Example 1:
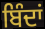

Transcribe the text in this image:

ਬਿੰਦਾਂ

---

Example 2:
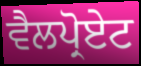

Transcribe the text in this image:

ਵੈਲਪ੍ਰੋਏਟ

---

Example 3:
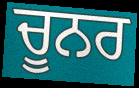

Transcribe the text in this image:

ਚੂਨਰ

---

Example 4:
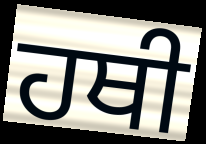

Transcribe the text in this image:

ਹਥੀ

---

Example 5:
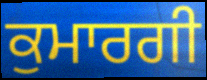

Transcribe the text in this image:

ਕੁਮਾਰਗੀ